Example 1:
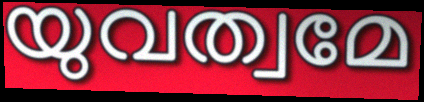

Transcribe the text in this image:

യുവത്വമേ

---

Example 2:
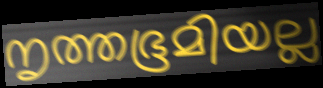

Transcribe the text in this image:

നൃത്തഭൂമിയല്ല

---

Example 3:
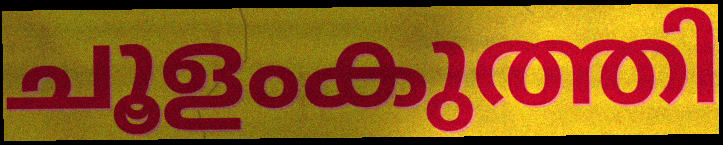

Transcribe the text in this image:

ചൂളംകുത്തി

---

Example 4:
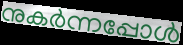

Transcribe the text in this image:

നുകർന്നപ്പോൾ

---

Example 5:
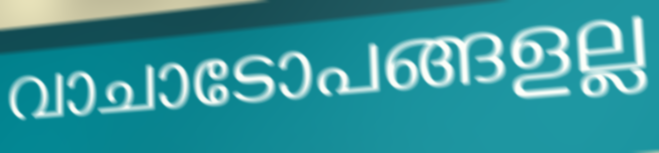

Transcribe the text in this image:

വാചാടോപങ്ങളല്ല